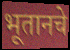
भूतानचे